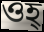
ওহ্